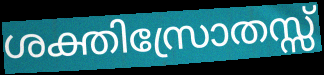
ശക്തിസ്രോതസ്സ്